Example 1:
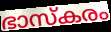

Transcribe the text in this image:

ഭാസ്കരം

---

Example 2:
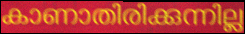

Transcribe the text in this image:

കാണാതിരിക്കുന്നില്ല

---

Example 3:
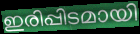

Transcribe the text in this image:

ഇരിപ്പിടമായി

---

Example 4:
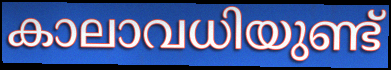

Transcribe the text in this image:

കാലാവധിയുണ്ട്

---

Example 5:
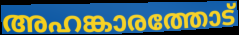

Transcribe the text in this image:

അഹങ്കാരത്തോട്